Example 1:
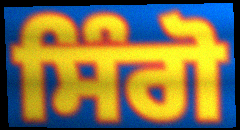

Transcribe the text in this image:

ਸਿੰਗੋ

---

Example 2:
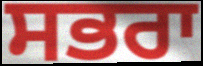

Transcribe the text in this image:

ਸਭਰਾ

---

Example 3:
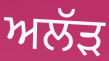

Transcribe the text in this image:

ਅਲੱੜ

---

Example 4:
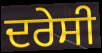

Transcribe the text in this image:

ਦਰੇਸੀ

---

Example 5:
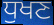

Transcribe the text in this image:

ਧੁਖਣ